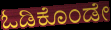
ಓಡಿಕೊಂಡೇ